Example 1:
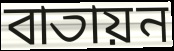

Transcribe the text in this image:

বাতায়ন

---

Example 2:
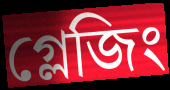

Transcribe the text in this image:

গ্লেজিং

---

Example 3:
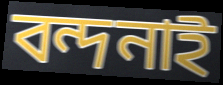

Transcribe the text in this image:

বন্দনাই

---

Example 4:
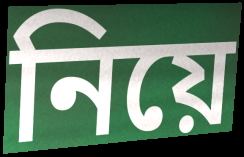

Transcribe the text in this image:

নিয়ে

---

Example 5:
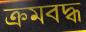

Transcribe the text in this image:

ক্ৰমবদ্ধ